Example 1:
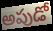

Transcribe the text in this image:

అపుడో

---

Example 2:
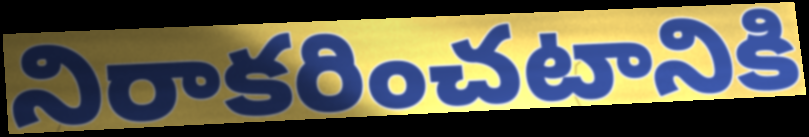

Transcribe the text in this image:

నిరాకరించటానికి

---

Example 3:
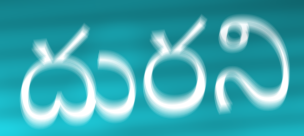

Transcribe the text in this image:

దురని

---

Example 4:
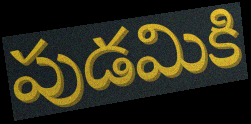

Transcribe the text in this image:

పుడమికి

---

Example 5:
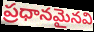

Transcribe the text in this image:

ప్రధానమైనవి